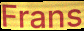
Frans